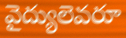
వైద్యులెవరూ